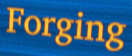
Forging